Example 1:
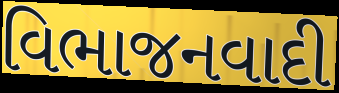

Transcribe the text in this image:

વિભાજનવાદી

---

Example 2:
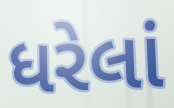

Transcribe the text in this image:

ધરેલાં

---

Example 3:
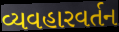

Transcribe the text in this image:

વ્યવહારવર્તન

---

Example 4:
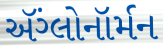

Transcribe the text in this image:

ઍંગ્લોનૉર્મન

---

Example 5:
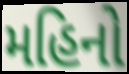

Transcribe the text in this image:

મહિનો